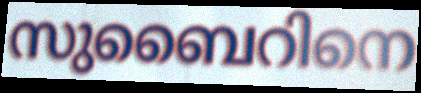
സുബൈറിനെ